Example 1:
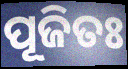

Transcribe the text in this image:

ପୂଜିତଃ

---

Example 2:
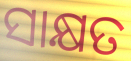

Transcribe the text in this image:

ସାକ୍ଷତ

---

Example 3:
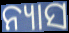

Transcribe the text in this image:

ନ୍ୟାସ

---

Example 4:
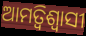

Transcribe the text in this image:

ଆମତ୍ବିଶ୍ୱାସୀ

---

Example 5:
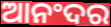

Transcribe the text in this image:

ଆନଂଦର